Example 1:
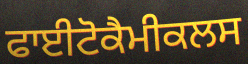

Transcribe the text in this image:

ਫਾਈਟੋਕੈਮੀਕਲਸ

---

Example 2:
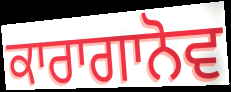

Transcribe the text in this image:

ਕਾਰਾਗਾਨੋਵ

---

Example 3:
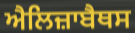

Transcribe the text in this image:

ਐਲਿਜ਼ਾਬੈਥਸ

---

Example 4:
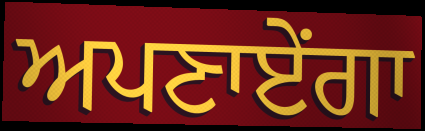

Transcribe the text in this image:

ਅਪਣਾਏਂਗਾ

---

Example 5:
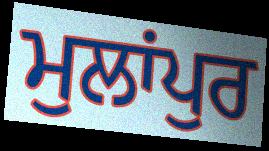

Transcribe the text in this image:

ਮੁਲਾਂਪੁਰ